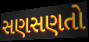
સણસણતો